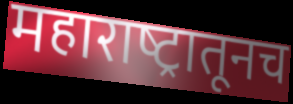
महाराष्ट्रातूनच